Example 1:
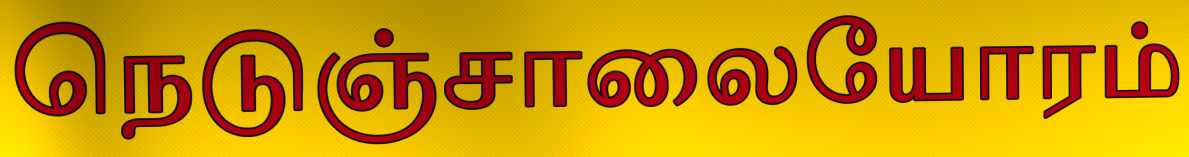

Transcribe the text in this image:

நெடுஞ்சாலையோரம்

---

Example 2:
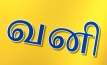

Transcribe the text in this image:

வனி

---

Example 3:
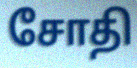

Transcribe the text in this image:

சோதி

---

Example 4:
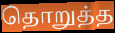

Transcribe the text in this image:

தொறுத்த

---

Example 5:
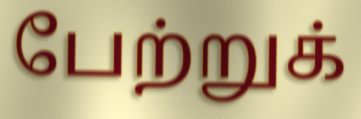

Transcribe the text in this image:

பேற்றுக்